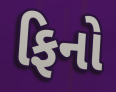
ફિનો